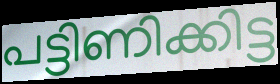
പട്ടിണിക്കിട്ട